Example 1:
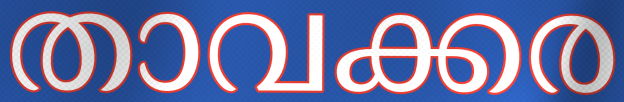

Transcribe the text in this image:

താവക്കര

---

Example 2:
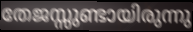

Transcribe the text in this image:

തേജസ്സുണ്ടായിരുന്നു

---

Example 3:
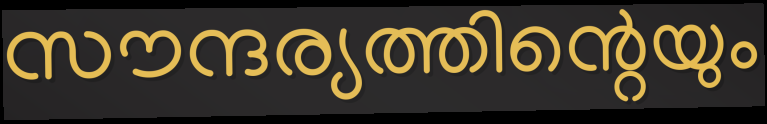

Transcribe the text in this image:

സൗന്ദര്യത്തിന്റെയും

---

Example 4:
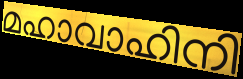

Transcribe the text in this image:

മഹാവാഹിനി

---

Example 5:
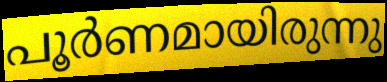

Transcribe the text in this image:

പൂർണമായിരുന്നു